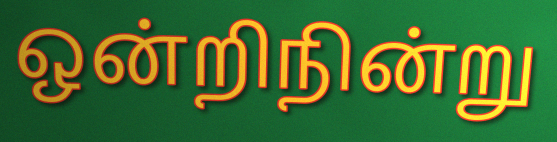
ஒன்றிநின்று